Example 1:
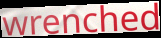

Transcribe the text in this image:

wrenched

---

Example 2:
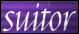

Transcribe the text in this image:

suitor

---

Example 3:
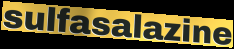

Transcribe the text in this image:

sulfasalazine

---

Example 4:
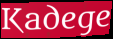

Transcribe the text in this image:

Kadege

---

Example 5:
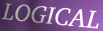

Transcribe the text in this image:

LOGICAL